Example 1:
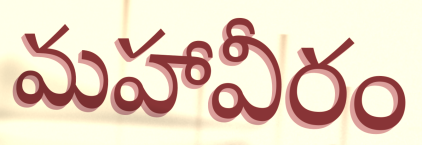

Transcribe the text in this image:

మహావీరం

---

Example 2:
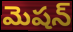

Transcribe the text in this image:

మెషన్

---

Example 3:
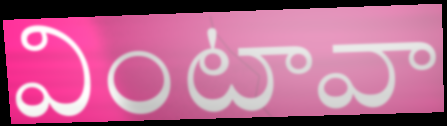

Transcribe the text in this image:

వింటావా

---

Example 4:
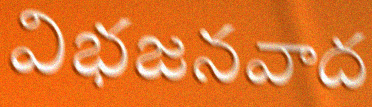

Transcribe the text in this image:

విభజనవాద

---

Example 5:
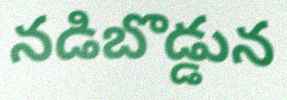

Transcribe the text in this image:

నడిబొడ్డున